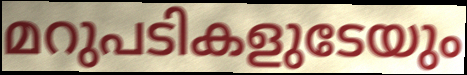
മറുപടികളുടേയും